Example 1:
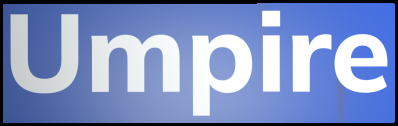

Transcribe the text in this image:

Umpire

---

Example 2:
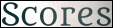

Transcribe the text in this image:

Scores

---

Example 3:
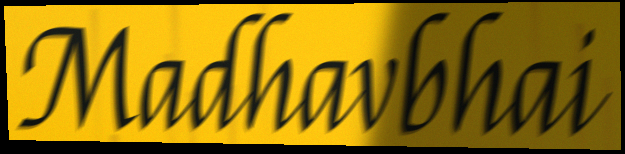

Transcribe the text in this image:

Madhavbhai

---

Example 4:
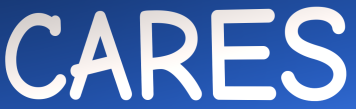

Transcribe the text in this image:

CARES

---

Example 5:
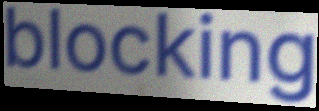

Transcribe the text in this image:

blocking